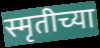
स्मृतीच्या